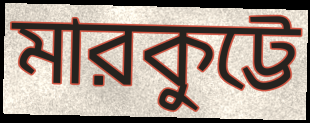
মারকুট্টে